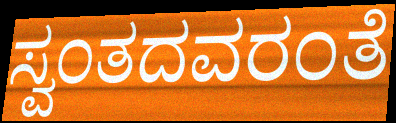
ಸ್ವಂತದವರಂತೆ